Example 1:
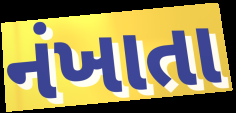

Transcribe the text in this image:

નંખાતા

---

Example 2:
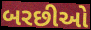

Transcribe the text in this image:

બરછીઓ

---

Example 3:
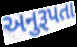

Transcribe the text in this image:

અનુરૂપતા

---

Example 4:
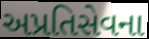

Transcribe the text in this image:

અપ્રતિસેવના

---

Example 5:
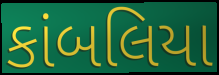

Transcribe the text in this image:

કાંબલિયા